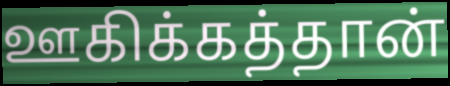
ஊகிக்கத்தான்